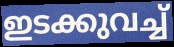
ഇടക്കുവച്ച്